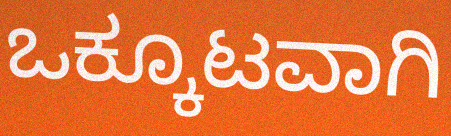
ಒಕ್ಕೂಟವಾಗಿ